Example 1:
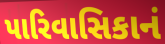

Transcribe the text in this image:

પારિવાસિકાનં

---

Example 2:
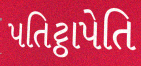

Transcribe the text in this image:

પતિટ્ઠાપેતિ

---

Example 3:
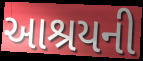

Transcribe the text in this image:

આશ્રયની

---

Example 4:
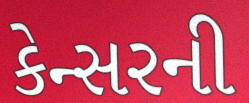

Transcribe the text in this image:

કેન્સરની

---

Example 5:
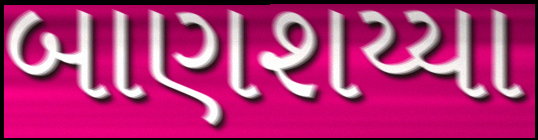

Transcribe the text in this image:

બાણશય્યા